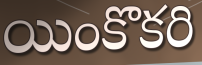
యింకొకరి